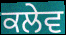
ਕਲੇਵ